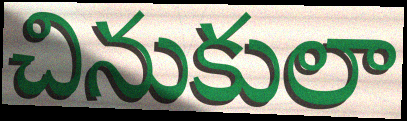
చినుకులా